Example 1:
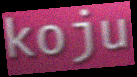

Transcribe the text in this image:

koju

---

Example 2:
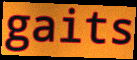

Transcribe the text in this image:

gaits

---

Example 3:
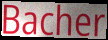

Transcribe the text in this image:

Bacher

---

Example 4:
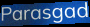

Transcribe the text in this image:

Parasgad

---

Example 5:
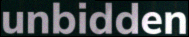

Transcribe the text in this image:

unbidden